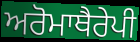
ਅਰੋਮਾਥੈਰੇਪੀ